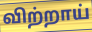
விற்றாய்